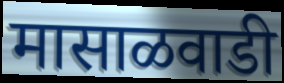
मासाळवाडी